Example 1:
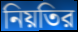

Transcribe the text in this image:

নিয়তির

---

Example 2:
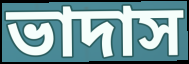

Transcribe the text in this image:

ভাদাস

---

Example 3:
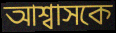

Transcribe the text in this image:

আশ্বাসকে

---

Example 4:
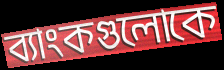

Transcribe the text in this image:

ব্যাংকগুলোকে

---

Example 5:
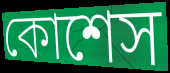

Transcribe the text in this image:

কোশেস